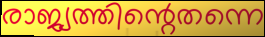
രാജ്യത്തിന്റെതന്നെ